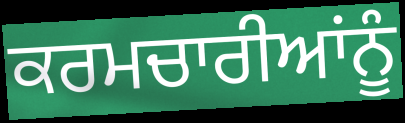
ਕਰਮਚਾਰੀਆਂਨੂੰ